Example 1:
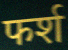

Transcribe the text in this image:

फर्श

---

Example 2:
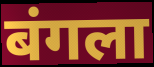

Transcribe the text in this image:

बंगला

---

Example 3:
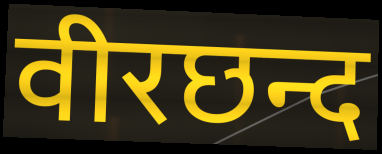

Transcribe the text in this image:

वीरछन्द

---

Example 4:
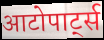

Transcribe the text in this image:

आटोपार्ट्स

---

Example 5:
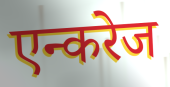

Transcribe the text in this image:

एन्करेज